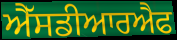
ਐੱਸਡੀਆਰਐਫ